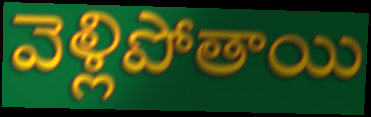
వెళ్లిపోతాయి